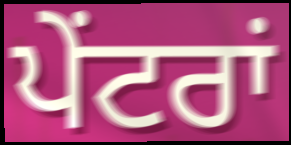
ਪੇਂਟਰਾਂ